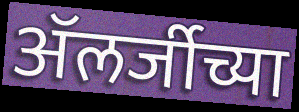
ॲलर्जीच्या